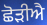
ਛੋੜੀਐ